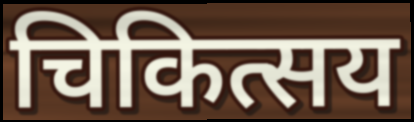
चिकित्सय